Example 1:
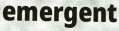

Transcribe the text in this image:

emergent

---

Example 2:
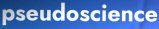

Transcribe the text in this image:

pseudoscience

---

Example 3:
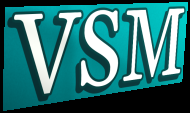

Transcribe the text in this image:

VSM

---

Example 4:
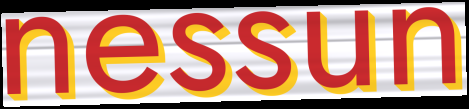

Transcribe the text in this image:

nessun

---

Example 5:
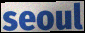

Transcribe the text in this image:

seoul